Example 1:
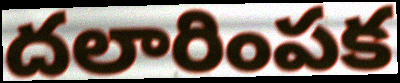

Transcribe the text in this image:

దలారింపక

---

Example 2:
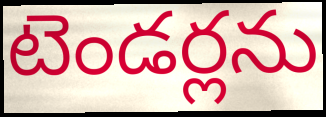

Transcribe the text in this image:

టెండర్లను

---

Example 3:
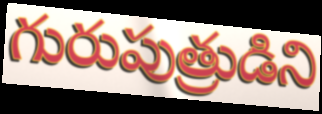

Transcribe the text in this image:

గురుపుత్రుడిని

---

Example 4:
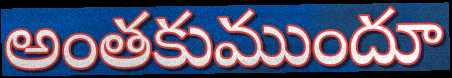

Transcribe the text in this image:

అంతకుముందూ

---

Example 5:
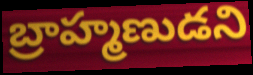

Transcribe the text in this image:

బ్రాహ్మణుడని